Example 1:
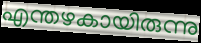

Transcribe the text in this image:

എന്തഴകായിരുന്നു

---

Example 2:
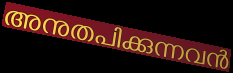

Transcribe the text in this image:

അനുതപിക്കുന്നവൻ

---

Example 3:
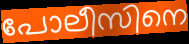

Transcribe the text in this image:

പോലീസിനെ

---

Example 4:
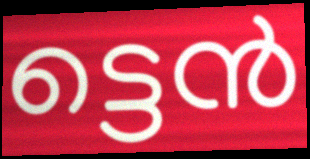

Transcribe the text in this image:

ട്ടെൻ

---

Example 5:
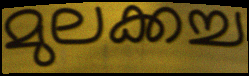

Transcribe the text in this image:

മുലക്കച്ച